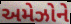
અમેઝોને